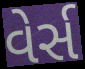
વેર્સ